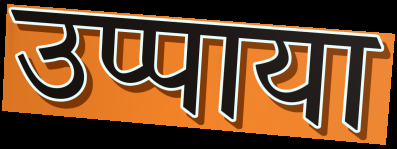
उप्पाया